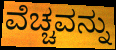
ವೆಚ್ಚವನ್ನು